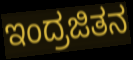
ಇಂದ್ರಜಿತನ